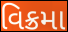
વિક્રમા